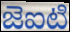
జెఐటి